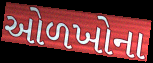
ઓળખોના